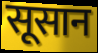
सूसान